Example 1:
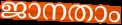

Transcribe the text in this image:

ജാനതാം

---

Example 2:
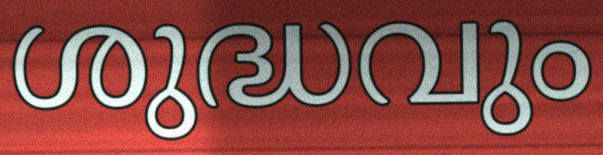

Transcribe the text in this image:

ശുദ്ധവും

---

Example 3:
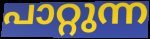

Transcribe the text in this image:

പാറ്റുന്ന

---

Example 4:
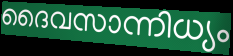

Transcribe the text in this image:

ദൈവസാന്നിധ്യം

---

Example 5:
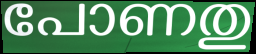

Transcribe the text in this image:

പോണതു